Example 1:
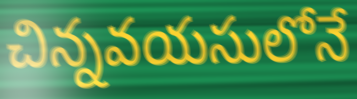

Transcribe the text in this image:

చిన్నవయసులోనే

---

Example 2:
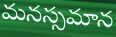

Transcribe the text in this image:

మనస్సమాన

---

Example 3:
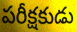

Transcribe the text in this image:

పరీక్షకుడు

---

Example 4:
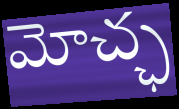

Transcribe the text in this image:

మోచ్ఛ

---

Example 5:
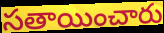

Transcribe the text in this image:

సతాయించారు